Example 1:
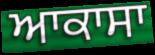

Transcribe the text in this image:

ਆਕਾਸਾ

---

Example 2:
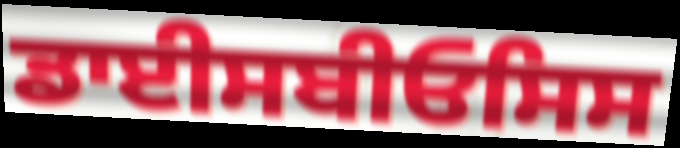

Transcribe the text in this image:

ਡਾਈਸਬੀਓਸਿਸ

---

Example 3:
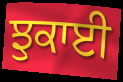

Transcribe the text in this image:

ਝੁਕਾਈ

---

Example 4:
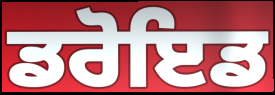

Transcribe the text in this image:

ਡਰੋਇਡ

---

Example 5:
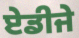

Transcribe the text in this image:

ਏਡੀਜੇ